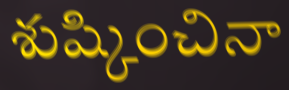
శుష్కించినా